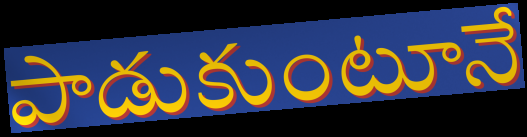
పాడుకుంటూనే